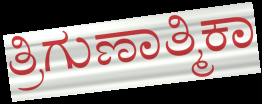
ತ್ರಿಗುಣಾತ್ಮಿಕಾ